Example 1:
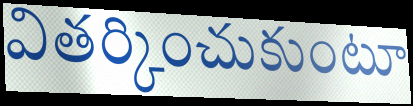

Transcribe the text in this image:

వితర్కించుకుంటూ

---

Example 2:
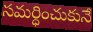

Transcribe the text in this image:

సమర్ధించుకునే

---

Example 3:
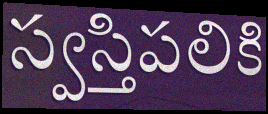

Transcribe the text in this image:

స్వస్తిపలికి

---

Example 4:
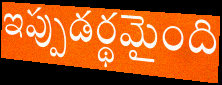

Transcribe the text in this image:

ఇప్పుడర్థమైంది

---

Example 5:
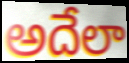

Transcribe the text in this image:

అదేలా